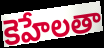
కెహేలతా